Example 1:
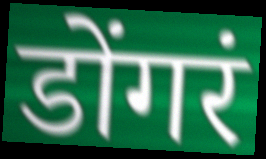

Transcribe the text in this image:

डोंगरं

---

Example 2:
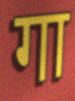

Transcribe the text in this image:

गा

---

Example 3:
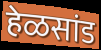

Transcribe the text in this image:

हेळसांड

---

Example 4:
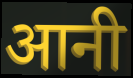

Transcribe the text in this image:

आनी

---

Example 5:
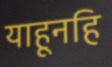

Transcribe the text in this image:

याहूनहि